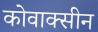
कोवाक्सीन